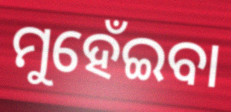
ମୁହେଁଇବା